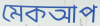
মেকআপ